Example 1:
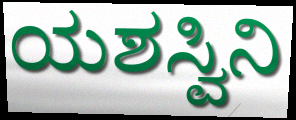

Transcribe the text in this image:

ಯಶಸ್ವಿನಿ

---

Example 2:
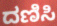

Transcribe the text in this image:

ದಣಿಸಿ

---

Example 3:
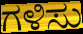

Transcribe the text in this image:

ಗಳಿಸು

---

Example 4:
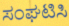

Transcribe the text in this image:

ಸಂಘಟಿಸಿ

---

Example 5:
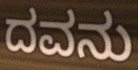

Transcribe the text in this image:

ದವನು